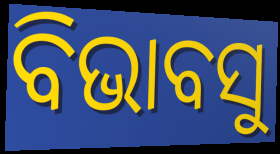
ବିଭାବସୁ